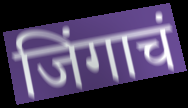
जिंगाचं